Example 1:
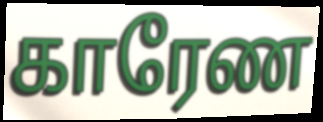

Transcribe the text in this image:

காரேண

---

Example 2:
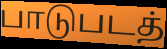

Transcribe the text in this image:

பாடுபடத்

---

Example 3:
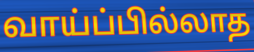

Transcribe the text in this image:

வாய்ப்பில்லாத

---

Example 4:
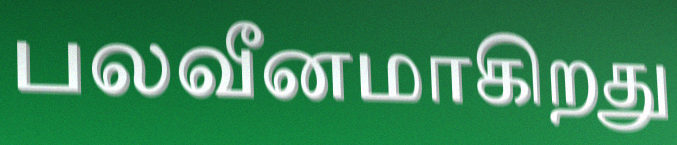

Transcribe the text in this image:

பலவீனமாகிறது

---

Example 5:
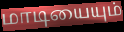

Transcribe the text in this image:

மாடியையும்